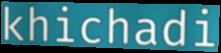
khichadi